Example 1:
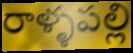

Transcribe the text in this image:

రాళ్ళపల్లి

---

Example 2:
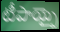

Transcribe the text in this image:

టీపాయ్పై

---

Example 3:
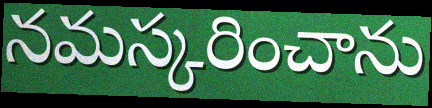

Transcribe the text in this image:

నమస్కరించాను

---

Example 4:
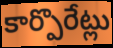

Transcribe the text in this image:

కార్పొరేట్లు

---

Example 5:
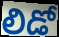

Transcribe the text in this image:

లిడో